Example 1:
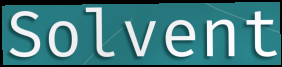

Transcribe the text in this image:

Solvent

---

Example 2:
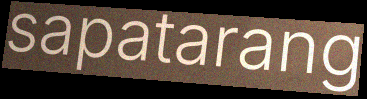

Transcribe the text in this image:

sapatarang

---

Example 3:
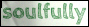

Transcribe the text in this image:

soulfully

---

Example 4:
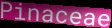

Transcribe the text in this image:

Pinaceae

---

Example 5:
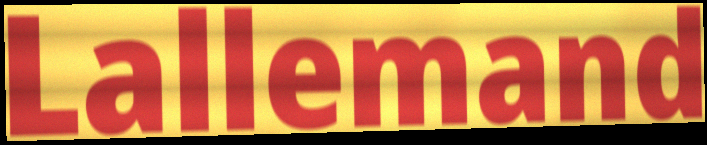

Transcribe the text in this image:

Lallemand